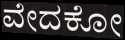
ವೇದಕೋ